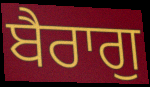
ਬੈਰਾਗੁ